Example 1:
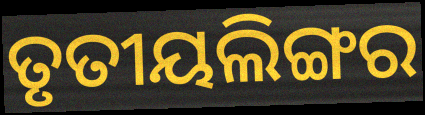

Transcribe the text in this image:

ତୃତୀୟଲିଙ୍ଗର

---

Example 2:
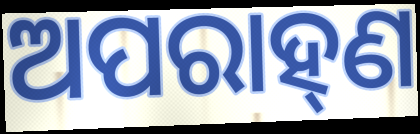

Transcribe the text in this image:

ଅପରାହ୍‍ଣ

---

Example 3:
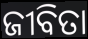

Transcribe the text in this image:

ଜୀବିତା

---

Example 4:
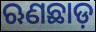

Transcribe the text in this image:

ଋଣଛାଡ଼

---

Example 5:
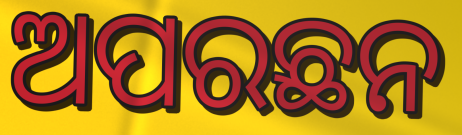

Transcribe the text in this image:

ଅପରଛନ